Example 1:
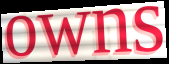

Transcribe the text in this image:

owns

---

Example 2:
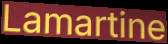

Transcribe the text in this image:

Lamartine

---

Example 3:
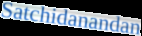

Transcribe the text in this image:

Satchidanandan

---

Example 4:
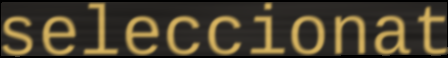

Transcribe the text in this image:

seleccionat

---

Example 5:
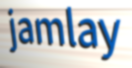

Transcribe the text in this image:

jamlay